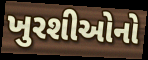
ખુરશીઓનો